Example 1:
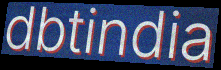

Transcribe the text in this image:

dbtindia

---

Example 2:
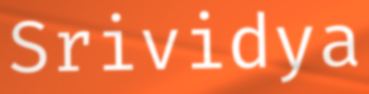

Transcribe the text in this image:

Srividya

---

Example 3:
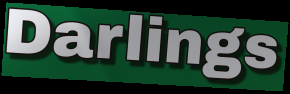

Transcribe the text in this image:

Darlings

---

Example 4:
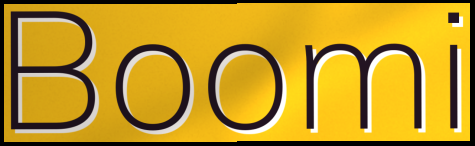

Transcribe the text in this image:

Boomi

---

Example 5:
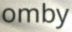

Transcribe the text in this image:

omby